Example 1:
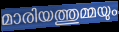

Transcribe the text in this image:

മാരിയത്തുമ്മയും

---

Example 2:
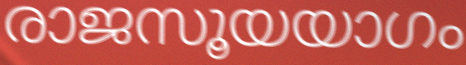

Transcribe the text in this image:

രാജസൂയയാഗം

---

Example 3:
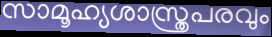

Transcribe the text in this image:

സാമൂഹ്യശാസ്ത്രപരവും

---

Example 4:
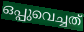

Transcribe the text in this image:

ഒപ്പുവെച്ചത്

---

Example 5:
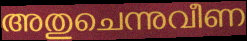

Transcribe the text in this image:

അതുചെന്നുവീണ